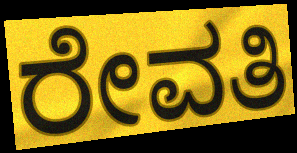
ರೇವತಿ